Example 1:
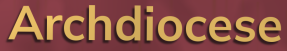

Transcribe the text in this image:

Archdiocese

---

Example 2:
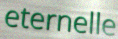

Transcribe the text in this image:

eternelle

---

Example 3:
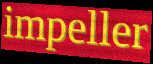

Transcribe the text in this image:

impeller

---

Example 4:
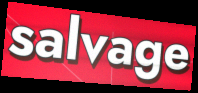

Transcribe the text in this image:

salvage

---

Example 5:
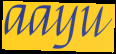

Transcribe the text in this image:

aayu